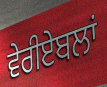
ਵੇਰੀਏਬਲਾਂ